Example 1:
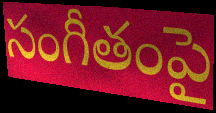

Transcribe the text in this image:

సంగీతంపై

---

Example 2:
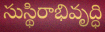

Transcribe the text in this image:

సుస్థిరాభివృద్ధి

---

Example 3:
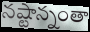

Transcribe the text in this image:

నష్టాన్నంతా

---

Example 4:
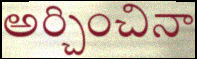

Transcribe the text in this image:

అర్చించినా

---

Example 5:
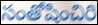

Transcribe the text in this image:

సంతోషించిరి